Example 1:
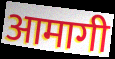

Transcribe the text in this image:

आमागी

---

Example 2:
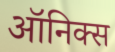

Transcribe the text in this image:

ऑनिक्स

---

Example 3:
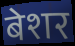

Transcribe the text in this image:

बेशर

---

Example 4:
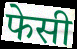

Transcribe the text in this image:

फेसी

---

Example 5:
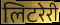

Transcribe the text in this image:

लिटरेरी